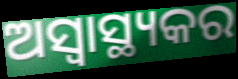
ଅସ୍ୱାସ୍ଥ୍ୟକର